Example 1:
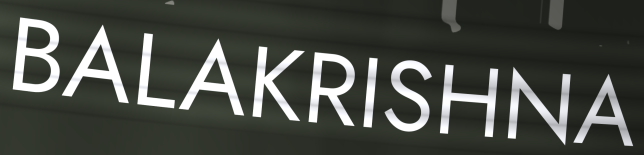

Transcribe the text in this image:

BALAKRISHNA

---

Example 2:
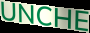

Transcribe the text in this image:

UNCHE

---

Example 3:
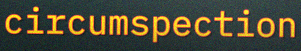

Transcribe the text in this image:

circumspection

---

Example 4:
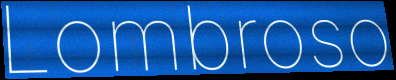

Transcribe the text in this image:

Lombroso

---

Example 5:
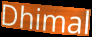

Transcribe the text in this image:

Dhimal